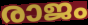
രാജം